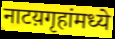
नाटय़गृहांमध्ये